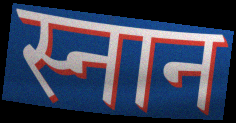
स्नान